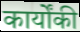
कार्योंकी